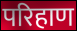
परिहाण